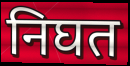
निघत